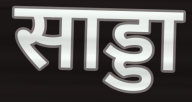
साड्डा